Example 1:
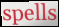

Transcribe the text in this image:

spells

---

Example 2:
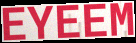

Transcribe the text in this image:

EYEEM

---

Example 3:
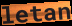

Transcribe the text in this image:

letan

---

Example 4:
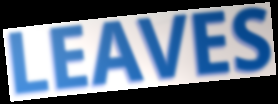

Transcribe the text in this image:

LEAVES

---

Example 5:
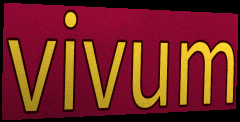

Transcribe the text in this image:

vivum